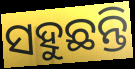
ସହୁଛନ୍ତି